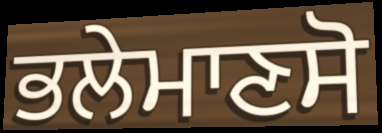
ਭਲੇਮਾਣਸੋ